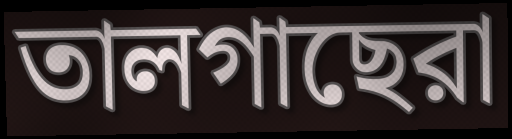
তালগাছেরা